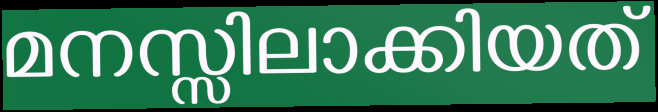
മനസ്സിലാക്കിയത്